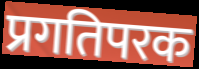
प्रगतिपरक